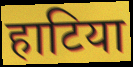
हाटिया